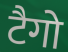
टैगो